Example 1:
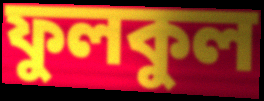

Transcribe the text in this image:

ফুলকুল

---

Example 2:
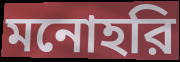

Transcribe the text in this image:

মনোহরি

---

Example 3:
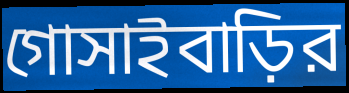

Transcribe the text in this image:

গোসাইবাড়ির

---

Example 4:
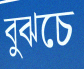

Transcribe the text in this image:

বুঝচে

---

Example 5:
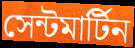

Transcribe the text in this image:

সেন্টমার্টিন